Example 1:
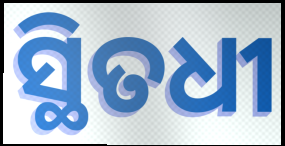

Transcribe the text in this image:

ସ୍ଥିତଧୀ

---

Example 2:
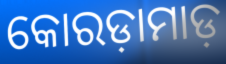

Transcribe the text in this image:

କୋରଡ଼ାମାଡ଼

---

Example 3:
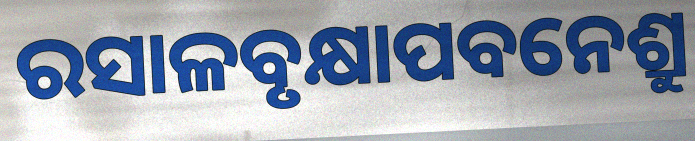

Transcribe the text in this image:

ରସାଳବୃକ୍ଷାପବନେଶ୍ରୁ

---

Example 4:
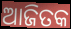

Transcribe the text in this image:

ଆଜିତକ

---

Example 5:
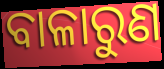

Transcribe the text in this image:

ବାଳାରୁଣ